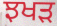
ਝਖੜ